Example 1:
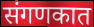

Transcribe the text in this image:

संगणकात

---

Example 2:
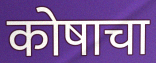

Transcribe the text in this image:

कोषाचा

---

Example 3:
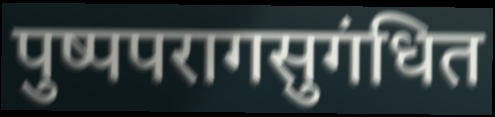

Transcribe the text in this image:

पुष्पपरागसुगंधित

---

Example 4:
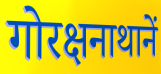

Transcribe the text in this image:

गोरक्षनाथानें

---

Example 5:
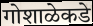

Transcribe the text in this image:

गोशाळेकडे